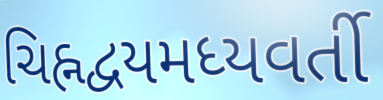
ચિહ્નદ્વયમધ્યવર્તી